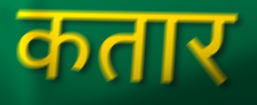
कतार